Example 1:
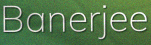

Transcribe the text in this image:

Banerjee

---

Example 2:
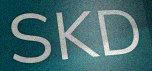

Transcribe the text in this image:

SKD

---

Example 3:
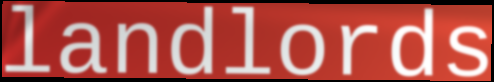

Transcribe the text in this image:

landlords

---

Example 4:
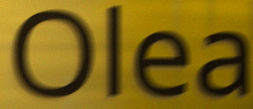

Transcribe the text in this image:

Olea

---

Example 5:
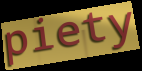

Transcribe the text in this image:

piety